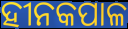
ହୀନକପାଳ